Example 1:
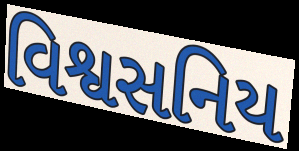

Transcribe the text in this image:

વિશ્વસનિય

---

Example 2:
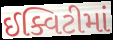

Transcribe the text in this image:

ઈક્વિટીમાં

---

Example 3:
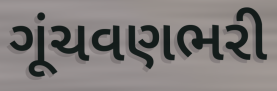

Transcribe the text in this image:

ગૂંચવણભરી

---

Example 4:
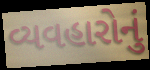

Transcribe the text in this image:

વ્યવહારોનું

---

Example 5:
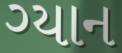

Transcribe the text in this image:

ગ્યાન